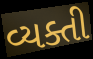
વ્યક્તી